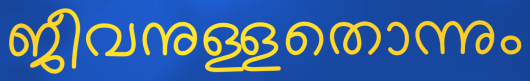
ജീവനുള്ളതൊന്നും